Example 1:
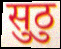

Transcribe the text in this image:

सुठु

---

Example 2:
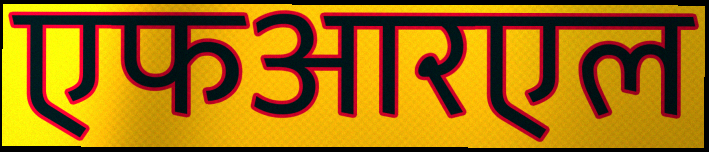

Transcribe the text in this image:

एफआरएल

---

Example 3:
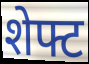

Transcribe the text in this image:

शेफ्ट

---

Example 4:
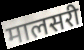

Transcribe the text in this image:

मालसरी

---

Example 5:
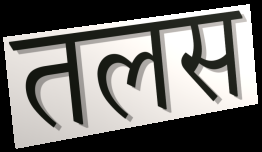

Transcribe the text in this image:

तलस